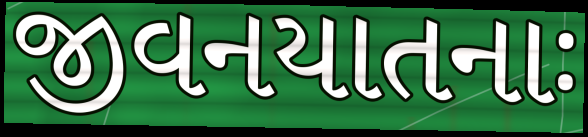
જીવનયાતનાઃ